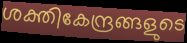
ശക്തികേന്ദ്രങ്ങളുടെ